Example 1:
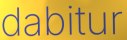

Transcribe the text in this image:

dabitur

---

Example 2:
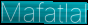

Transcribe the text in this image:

Mafatlal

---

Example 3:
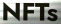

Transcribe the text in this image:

NFTs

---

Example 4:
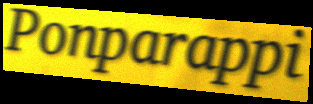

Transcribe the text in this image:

Ponparappi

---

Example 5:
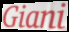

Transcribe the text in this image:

Giani